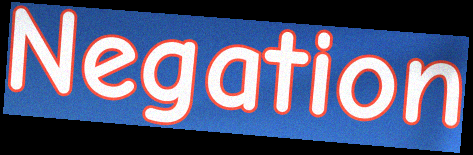
Negation